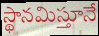
స్థానమిస్తూనే